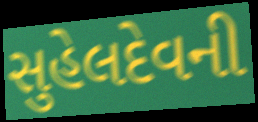
સુહેલદેવની